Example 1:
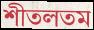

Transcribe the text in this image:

শীতলতম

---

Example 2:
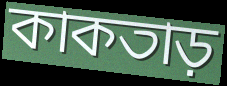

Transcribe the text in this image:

কাকতাড়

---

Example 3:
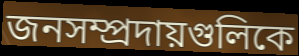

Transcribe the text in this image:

জনসম্প্রদায়গুলিকে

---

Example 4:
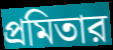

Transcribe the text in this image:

প্রমিতার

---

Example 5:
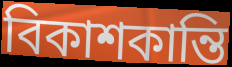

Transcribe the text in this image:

বিকাশকান্তি